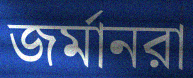
জর্মানরা